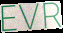
EVR